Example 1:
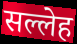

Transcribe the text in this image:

सल्लेह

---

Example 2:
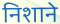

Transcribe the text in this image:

निशाने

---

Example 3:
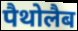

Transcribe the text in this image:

पैथोलैब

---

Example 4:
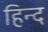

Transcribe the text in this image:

हिन्द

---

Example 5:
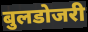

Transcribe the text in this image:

बुलडोजरी